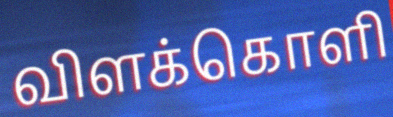
விளக்கொளி